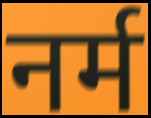
नर्म